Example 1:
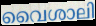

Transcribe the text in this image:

വൈശാലി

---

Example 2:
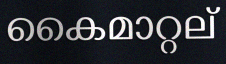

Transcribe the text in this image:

കൈമാറ്റല്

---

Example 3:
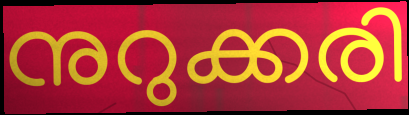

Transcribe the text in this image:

നുറുക്കരി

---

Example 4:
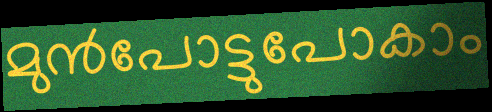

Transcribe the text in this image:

മുൻപോട്ടുപോകാം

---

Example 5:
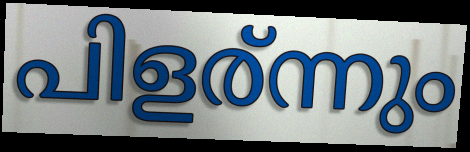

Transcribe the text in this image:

പിളര്ന്നും